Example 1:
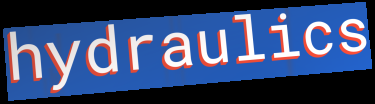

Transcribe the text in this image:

hydraulics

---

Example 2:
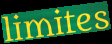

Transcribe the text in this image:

limites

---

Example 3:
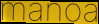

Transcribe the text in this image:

manoa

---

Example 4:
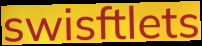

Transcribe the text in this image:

swisftlets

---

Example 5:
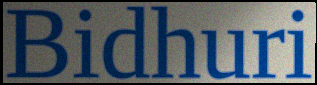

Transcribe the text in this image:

Bidhuri